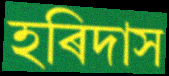
হৰিদাস